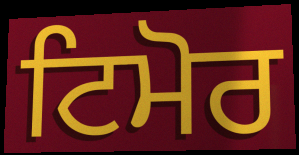
ਟਿਮੋਰ